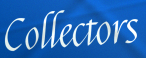
Collectors